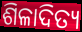
ଶିଳାଦିତ୍ୟ